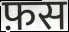
फ़स